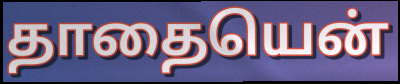
தாதையென்